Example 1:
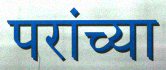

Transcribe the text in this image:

परांच्या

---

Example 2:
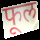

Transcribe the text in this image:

फूल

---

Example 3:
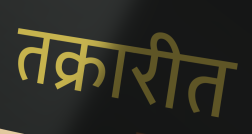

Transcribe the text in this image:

तक्रारीत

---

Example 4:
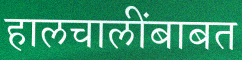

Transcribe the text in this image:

हालचालींबाबत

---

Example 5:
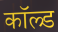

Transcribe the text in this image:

कॉल्ड